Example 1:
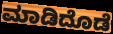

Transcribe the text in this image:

ಮಾಡಿದೊಡೆ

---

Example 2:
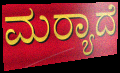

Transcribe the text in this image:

ಮರ‍್ಯಾದೆ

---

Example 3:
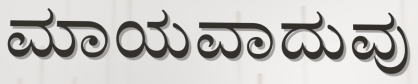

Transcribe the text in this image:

ಮಾಯವಾದುವು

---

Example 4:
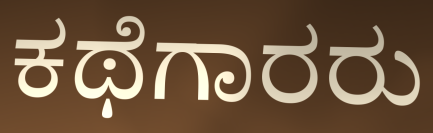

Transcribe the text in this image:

ಕಥೆಗಾರರು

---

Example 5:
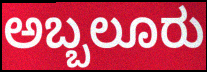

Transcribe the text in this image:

ಅಬ್ಬಲೂರು